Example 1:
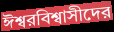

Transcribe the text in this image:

ঈশ্বরবিশ্বাসীদের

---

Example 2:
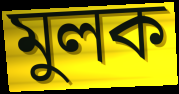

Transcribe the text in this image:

মুলক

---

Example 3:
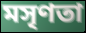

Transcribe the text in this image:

মসৃণতা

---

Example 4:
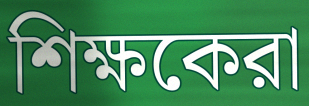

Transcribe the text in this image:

শিক্ষকেরা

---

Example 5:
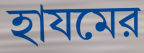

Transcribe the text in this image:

হাযমের